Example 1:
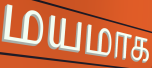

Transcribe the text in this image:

மயமாக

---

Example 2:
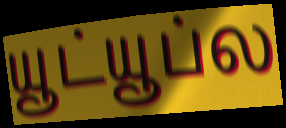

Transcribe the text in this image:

யூட்யூப்ல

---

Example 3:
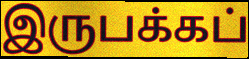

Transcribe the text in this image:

இருபக்கப்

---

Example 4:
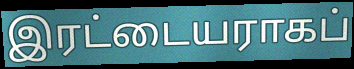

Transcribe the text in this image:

இரட்டையராகப்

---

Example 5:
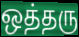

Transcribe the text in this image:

ஒத்தரு